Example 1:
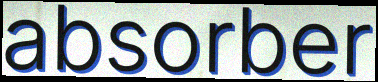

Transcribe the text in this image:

absorber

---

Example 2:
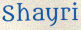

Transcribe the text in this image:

Shayri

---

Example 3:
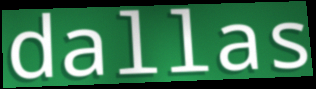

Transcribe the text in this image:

dallas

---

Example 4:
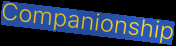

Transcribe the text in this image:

Companionship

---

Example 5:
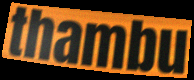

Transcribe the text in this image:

thambu